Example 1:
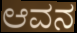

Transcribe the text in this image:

ಆವನ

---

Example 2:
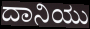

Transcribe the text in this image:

ದಾನಿಯು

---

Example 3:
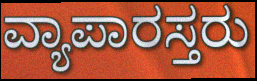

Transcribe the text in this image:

ವ್ಯಾಪಾರಸ್ತರು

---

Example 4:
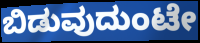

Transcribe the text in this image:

ಬಿಡುವುದುಂಟೇ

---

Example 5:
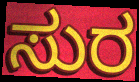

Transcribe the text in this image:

ಸುರ